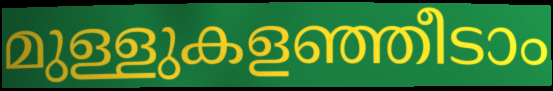
മുള്ളുകളഞ്ഞീടാം